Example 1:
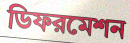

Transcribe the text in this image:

ডিফরমেশন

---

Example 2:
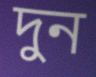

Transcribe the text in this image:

দুন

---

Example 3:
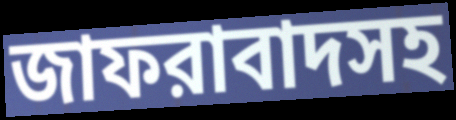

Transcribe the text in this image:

জাফরাবাদসহ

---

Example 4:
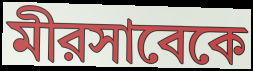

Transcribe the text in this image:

মীরসাবেকে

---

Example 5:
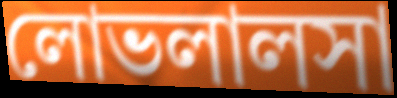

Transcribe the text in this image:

লোভলালসা